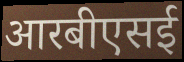
आरबीएसई